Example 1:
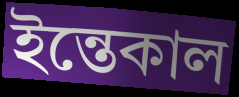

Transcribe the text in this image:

ইন্তেকাল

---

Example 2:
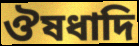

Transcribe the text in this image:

ঔষধাদি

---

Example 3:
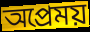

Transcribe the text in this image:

অপ্রেময়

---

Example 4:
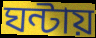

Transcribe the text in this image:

ঘন্টায়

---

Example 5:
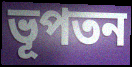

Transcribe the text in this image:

ভূপতন